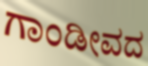
ಗಾಂಡೀವದ